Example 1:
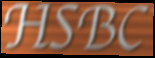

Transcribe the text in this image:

HSBC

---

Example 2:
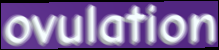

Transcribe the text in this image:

ovulation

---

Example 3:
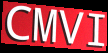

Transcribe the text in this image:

CMVI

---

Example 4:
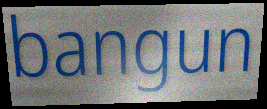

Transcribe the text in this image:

bangun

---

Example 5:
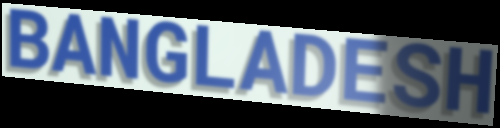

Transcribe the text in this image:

BANGLADESH